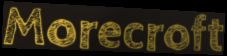
Morecroft